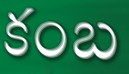
కంబ